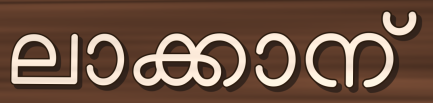
ലാക്കാന്